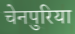
चेनपुरिया